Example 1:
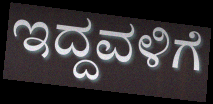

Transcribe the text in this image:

ಇದ್ದವಳಿಗೆ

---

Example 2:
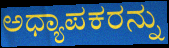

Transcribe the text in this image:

ಅಧ್ಯಾಪಕರನ್ನು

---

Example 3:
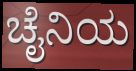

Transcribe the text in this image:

ಚೈನಿಯ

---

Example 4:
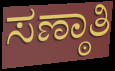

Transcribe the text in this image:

ಸಣ್ಠಾತಿ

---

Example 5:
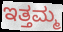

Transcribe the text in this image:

ಇತ್ತಮ್ಮ